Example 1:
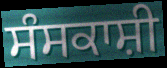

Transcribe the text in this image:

ਸੰਸਕਾਸ਼ੀ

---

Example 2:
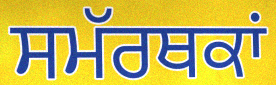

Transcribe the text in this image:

ਸਮੱਰਥਕਾਂ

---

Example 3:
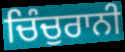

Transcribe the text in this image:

ਚਿੰਚੁਰਾਨੀ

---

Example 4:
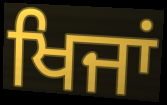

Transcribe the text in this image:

ਖਿਜਾਂ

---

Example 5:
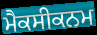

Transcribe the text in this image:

ਮੈਕਸੀਕਨਮ